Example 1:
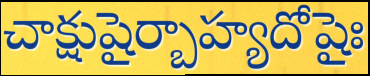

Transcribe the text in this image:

చాక్షుషైర్బాహ్యదోషైః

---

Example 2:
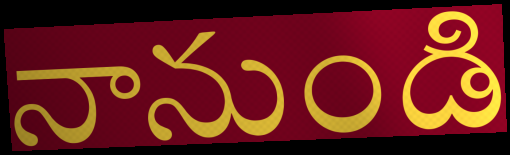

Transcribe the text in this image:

నానుండి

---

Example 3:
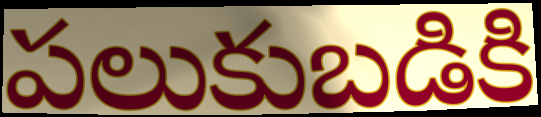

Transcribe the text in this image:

పలుకుబడికి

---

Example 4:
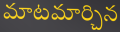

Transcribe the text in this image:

మాటమార్చిన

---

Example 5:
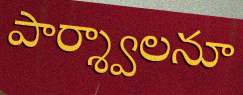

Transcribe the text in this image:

పార్శ్వాలనూ